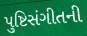
પુષ્ટિસંગીતની